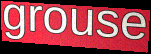
grouse